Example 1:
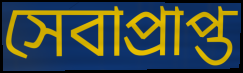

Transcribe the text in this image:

সেবাপ্রাপ্ত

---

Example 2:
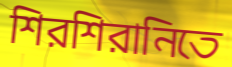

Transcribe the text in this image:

শিরশিরানিতে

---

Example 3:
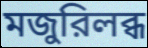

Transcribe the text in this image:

মজুরিলব্ধ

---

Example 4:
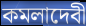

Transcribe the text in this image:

কমলাদেবী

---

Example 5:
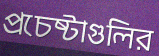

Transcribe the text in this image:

প্রচেষ্টাগুলির